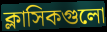
ক্লাসিকগুলো